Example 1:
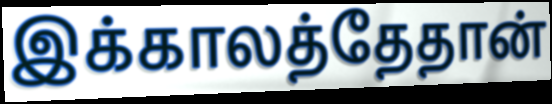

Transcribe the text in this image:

இக்காலத்தேதான்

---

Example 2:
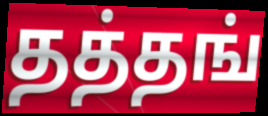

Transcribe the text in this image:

தத்தங்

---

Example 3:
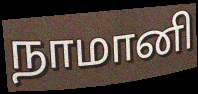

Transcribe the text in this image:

நாமானி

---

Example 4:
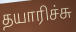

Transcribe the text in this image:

தயாரிச்சு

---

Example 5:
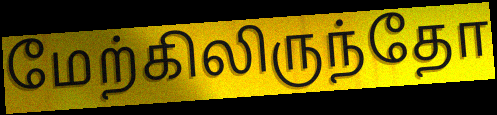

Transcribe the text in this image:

மேற்கிலிருந்தோ